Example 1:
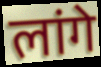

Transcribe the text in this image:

लांगे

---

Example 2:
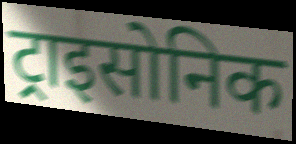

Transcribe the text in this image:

ट्राइसोनिक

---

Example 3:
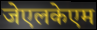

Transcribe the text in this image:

जेएलकेएम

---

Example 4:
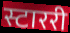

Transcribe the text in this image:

स्टाररी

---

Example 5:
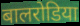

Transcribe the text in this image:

बालरोडिया